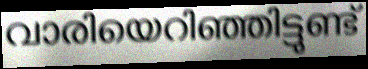
വാരിയെറിഞ്ഞിട്ടുണ്ട്